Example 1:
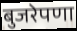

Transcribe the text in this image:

बुजरेपणा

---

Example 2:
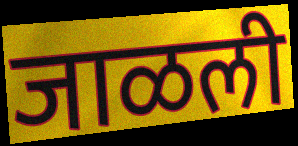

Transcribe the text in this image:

जाळली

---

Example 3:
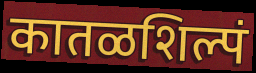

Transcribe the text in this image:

कातळशिल्पं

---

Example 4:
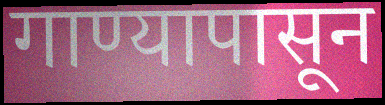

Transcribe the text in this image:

गाण्यापासून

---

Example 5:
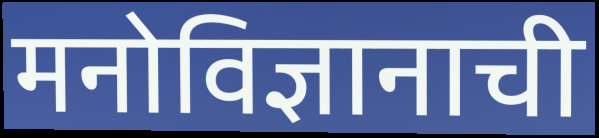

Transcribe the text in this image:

मनोविज्ञानाची